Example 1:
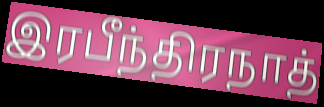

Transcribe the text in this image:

இரபீந்திரநாத்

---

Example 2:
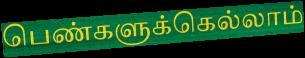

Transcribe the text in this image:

பெண்களுக்கெல்லாம்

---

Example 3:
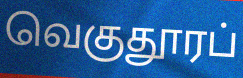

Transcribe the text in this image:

வெகுதூரப்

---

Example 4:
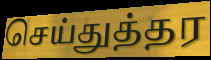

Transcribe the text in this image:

செய்துத்தர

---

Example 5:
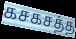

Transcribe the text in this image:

கசகசத்த